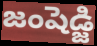
జంషెడ్జి